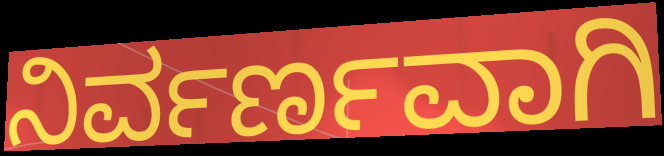
ನಿರ್ವರ್ಣವಾಗಿ